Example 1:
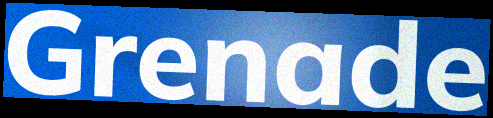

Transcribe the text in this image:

Grenade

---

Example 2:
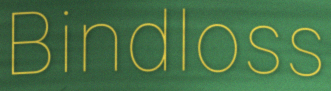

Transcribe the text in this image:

Bindloss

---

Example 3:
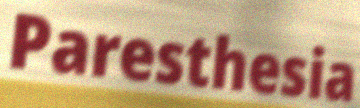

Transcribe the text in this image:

Paresthesia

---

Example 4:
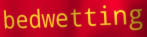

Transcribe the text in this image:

bedwetting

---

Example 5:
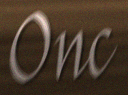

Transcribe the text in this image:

Onc